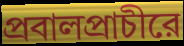
প্রবালপ্রাচীরে